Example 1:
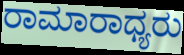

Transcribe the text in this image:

ರಾಮಾರಾಧ್ಯರು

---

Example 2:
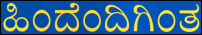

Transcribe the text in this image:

ಹಿಂದೆಂದಿಗಿಂತ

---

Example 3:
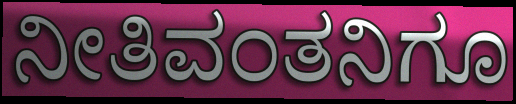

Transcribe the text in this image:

ನೀತಿವಂತನಿಗೂ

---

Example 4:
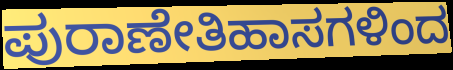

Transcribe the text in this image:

ಪುರಾಣೇತಿಹಾಸಗಳಿಂದ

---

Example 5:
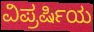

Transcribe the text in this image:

ವಿಪ್ರರ್ಷಿಯ